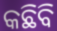
କଛିବି